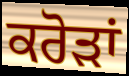
ਕਰੋੜਾਂ